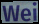
Wei